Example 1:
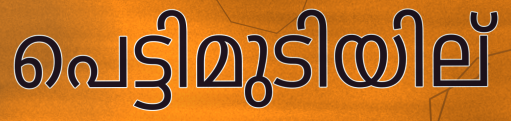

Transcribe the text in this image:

പെട്ടിമുടിയില്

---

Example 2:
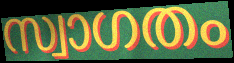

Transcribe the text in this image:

സ്വാഗതം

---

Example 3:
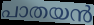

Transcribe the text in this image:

പാതയൻ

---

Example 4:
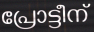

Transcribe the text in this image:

പ്രോട്ടീന്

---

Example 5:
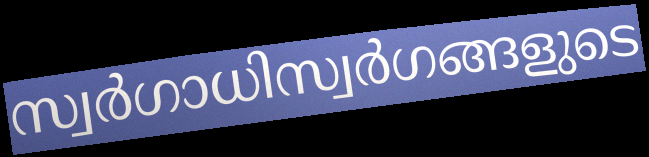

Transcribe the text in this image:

സ്വർഗാധിസ്വർഗങ്ങളുടെ